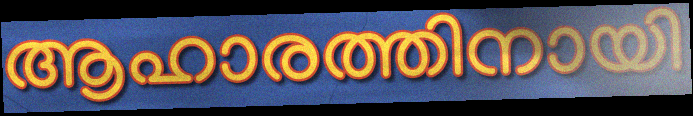
ആഹാരത്തിനായി